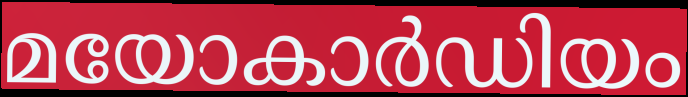
മയോകാർഡിയം